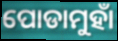
ପୋଡାମୁହାଁ